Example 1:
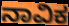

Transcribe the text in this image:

ನಾವಿಕ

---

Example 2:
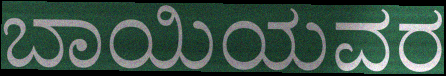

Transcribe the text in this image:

ಬಾಯಿಯವರ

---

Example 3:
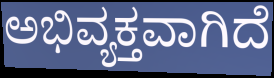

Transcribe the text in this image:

ಅಭಿವ್ಯಕ್ತವಾಗಿದೆ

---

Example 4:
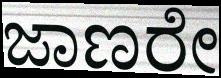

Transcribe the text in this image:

ಜಾಣರೇ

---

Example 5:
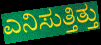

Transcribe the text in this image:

ಎನಿಸುತ್ತಿತ್ತು